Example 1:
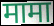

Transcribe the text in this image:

मामा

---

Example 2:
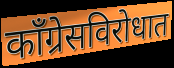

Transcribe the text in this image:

काँग्रेसविरोधात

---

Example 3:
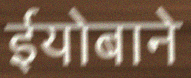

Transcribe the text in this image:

ईयोबाने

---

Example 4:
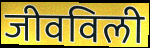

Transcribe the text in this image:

जीवविली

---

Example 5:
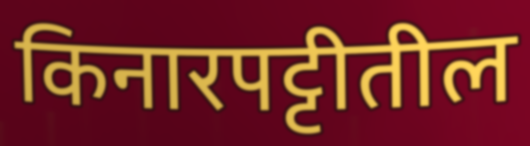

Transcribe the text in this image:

किनारपट्टीतील